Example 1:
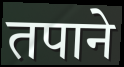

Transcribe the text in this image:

तपाने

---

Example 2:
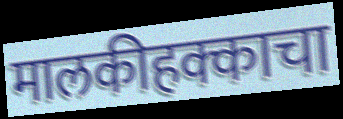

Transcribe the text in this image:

मालकीहक्काचा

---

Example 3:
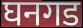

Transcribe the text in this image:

घनगड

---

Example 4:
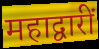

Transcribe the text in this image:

महाद्वारीं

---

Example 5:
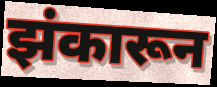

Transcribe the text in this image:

झंकारून